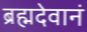
ब्रह्मदेवानं